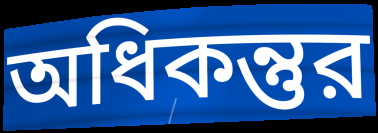
অধিকন্তুর